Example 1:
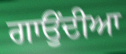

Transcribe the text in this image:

ਗਾਉਂਦੀਆ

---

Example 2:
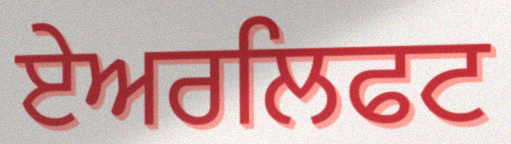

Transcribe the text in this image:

ਏਅਰਲਿਫਟ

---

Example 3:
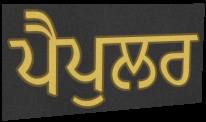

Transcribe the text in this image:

ਪੈਪੁਲਰ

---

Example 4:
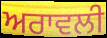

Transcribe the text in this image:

ਅਰਾਵਲੀ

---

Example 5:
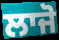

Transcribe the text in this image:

ਲਾਜੋ